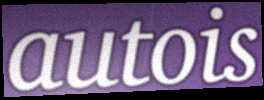
autois